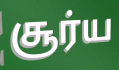
சூர்ய